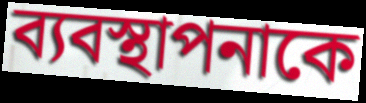
ব্যবস্থাপনাকে